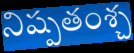
నిష్పతంశ్చ